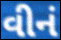
વીનં